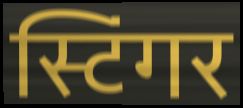
स्टिंगर